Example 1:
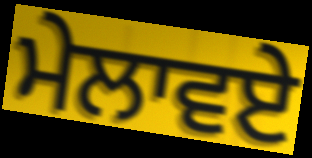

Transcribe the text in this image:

ਮੇਲਾਵਏ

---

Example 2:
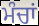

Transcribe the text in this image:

ਮੰਚਾਂ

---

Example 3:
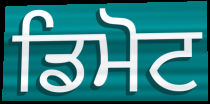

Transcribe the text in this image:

ਡਿਮੋਟ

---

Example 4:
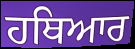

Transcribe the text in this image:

ਹਥਿਆਰ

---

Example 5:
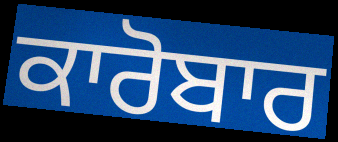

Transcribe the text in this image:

ਕਾਰੋਬਾਰ